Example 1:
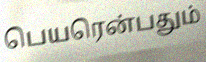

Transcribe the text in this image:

பெயரென்பதும்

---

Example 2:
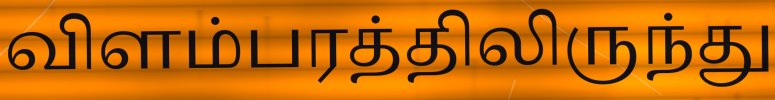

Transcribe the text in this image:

விளம்பரத்திலிருந்து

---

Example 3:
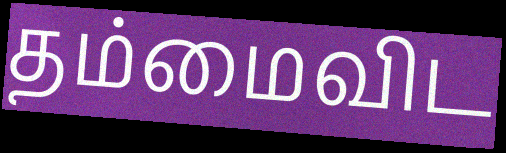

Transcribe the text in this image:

தம்மைவிட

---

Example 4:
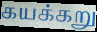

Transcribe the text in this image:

கயக்கறு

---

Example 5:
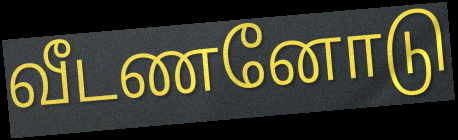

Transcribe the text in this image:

வீடணனோடு